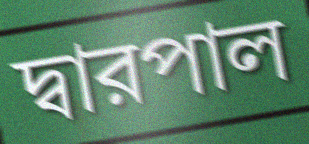
দ্বারপাল